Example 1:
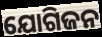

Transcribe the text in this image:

ଯୋଗିଜନ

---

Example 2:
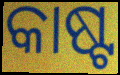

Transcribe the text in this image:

କାଷ୍ଟ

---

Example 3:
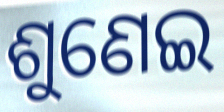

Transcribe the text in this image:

ଶୁଣେଇ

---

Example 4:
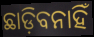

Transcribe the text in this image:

ଛାଡ଼ିବନାହିଁ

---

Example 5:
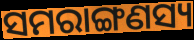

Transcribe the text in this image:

ସମରାଙ୍ଗଣସ୍ୟ